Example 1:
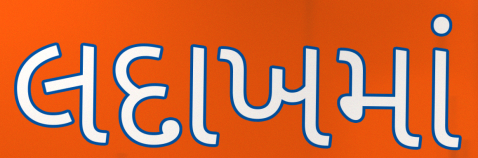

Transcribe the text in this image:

લદાખમાં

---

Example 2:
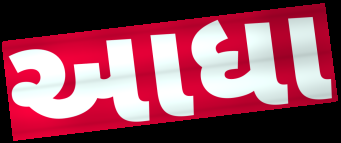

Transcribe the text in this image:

આધા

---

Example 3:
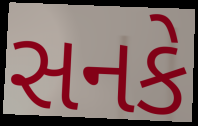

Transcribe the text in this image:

સનકે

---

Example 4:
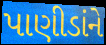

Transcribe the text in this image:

પાણીડાંને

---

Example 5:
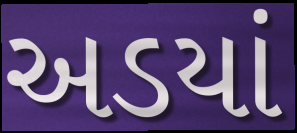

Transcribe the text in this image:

અડયાં